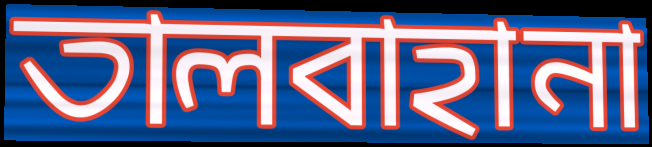
তালবাহানা